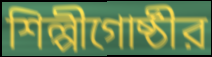
শিল্পীগোষ্ঠীর